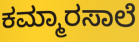
ಕಮ್ಮಾರಸಾಲೆ